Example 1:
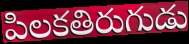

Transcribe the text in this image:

పిలకతిరుగుడు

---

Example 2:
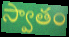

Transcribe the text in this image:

స్వాతం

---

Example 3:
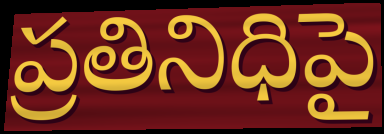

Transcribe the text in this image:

ప్రతినిధిపై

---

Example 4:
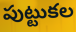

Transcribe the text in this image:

పుట్టుకల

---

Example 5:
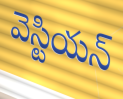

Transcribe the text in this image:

వెస్టియన్